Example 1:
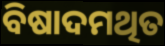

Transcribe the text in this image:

ବିଷାଦମଥିତ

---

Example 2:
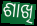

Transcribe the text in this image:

ଶାଖି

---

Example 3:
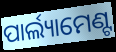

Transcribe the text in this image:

ପାର୍ଲ୍ୟାମେଣ୍ଟ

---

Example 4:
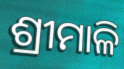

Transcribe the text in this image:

ଶ୍ରୀମାଳି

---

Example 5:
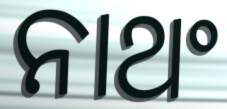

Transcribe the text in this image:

ନାଥଂ